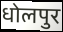
धोलपुर